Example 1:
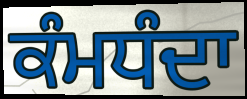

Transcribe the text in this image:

ਕੰਮਧੰਦਾ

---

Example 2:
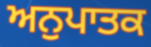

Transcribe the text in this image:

ਅਨੁਪਾਤਕ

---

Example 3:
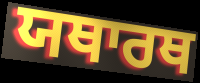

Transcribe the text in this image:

ਯਥਾਰਥ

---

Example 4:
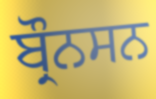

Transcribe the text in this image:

ਬ੍ਰੌਨਸਨ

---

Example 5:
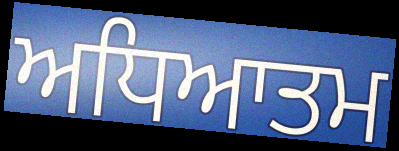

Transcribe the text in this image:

ਅਧਿਆਤਮ